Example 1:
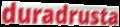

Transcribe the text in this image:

duradrusta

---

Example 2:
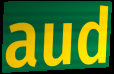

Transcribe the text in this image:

aud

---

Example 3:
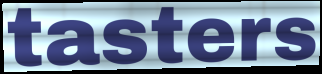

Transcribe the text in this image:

tasters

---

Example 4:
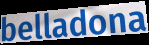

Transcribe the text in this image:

belladona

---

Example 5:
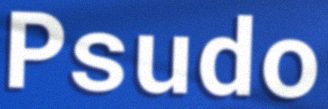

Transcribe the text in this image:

Psudo